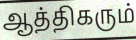
ஆத்திகரும்